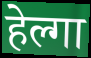
हेल्गा